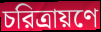
চরিত্রায়ণে